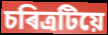
চৰিত্ৰটিয়ে